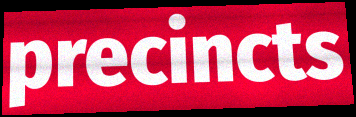
precincts